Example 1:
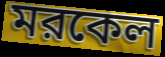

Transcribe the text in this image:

মরকেল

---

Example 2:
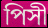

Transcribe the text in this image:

পিসী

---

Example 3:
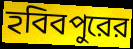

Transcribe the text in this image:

হবিবপুরের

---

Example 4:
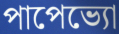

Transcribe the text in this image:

পাপেভ্যো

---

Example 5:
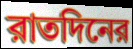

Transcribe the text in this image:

রাতদিনের